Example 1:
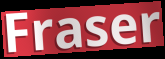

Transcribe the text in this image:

Fraser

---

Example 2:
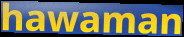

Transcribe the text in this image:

hawaman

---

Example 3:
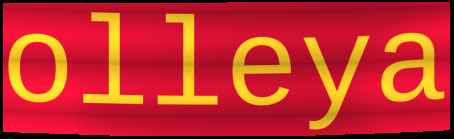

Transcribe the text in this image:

olleya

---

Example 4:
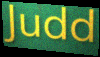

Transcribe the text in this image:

Judd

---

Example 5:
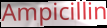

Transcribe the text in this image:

Ampicillin